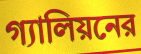
গ্যালিয়নের